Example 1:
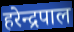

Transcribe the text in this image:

हरेन्द्रपाल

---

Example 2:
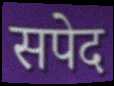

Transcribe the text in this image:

सपेद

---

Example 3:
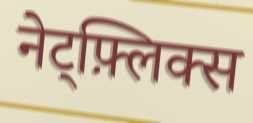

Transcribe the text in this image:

नेट्फ़्लिक्स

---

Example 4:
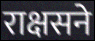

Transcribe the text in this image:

राक्षसने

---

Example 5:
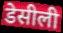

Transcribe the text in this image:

डेसीली